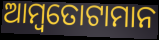
ଆମ୍ବତୋଟାମାନ